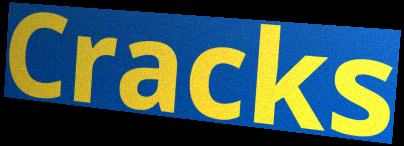
Cracks